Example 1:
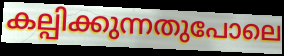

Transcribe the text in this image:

കല്പിക്കുന്നതുപോലെ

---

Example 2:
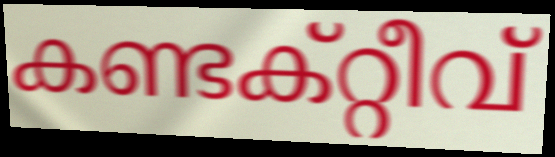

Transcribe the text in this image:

കണ്ടക്റ്റീവ്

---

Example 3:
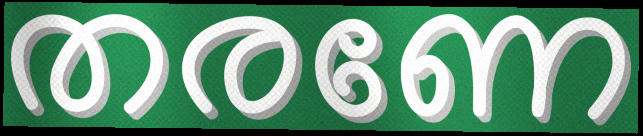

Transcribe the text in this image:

തരണേ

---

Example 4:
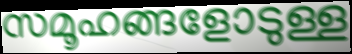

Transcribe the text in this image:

സമൂഹങ്ങളോടുള്ള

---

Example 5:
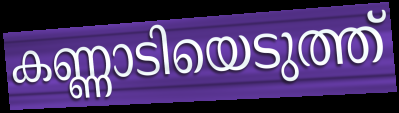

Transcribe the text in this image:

കണ്ണാടിയെടുത്ത്